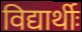
विद्यार्थीः